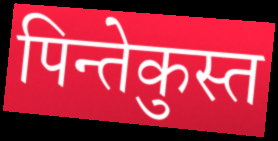
पिन्तेकुस्त